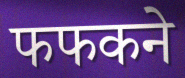
फफकने